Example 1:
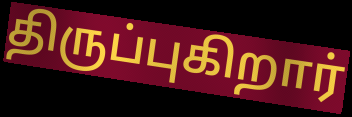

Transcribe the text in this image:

திருப்புகிறார்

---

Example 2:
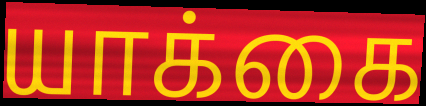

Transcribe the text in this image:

யாக்கை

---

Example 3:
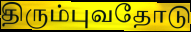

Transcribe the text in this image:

திரும்புவதோடு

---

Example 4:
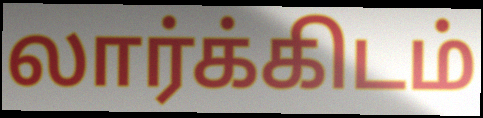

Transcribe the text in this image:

லார்க்கிடம்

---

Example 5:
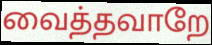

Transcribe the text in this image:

வைத்தவாறே